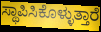
ಸ್ಥಾಪಿಸಿಕೊಳ್ಳುತ್ತಾರೆ